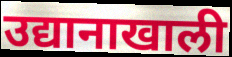
उद्यानाखाली